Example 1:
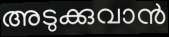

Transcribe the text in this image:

അടുക്കുവാൻ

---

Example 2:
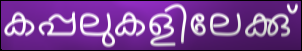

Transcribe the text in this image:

കപ്പലുകളിലേക്കു്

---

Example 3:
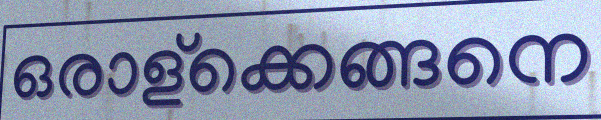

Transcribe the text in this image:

ഒരാള്ക്കെങ്ങനെ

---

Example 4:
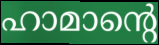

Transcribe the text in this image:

ഹാമാന്റെ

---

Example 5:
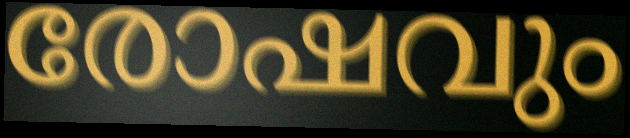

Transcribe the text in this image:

രോഷവും